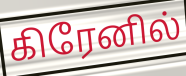
கிரேனில்